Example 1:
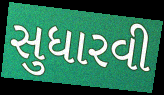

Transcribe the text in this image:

સુધારવી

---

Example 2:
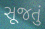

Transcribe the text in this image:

સૂજતું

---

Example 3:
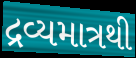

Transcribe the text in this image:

દ્રવ્યમાત્રથી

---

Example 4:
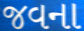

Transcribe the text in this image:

જવના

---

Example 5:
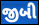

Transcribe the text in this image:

જીબી